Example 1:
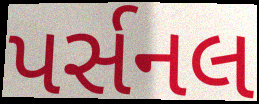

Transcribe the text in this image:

પર્સનલ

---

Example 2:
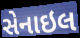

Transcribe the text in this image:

સેનાઇલ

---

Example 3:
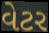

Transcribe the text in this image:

વેટર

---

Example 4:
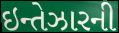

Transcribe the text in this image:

ઇન્તેઝારની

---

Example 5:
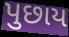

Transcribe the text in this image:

પુછાય